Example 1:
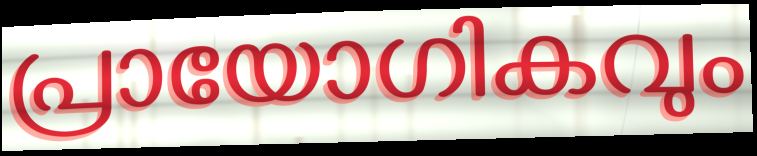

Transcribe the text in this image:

പ്രായോഗികവും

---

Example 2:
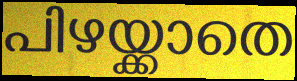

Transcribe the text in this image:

പിഴയ്ക്കാതെ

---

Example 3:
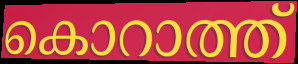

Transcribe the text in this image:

കൊറാത്ത്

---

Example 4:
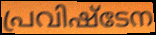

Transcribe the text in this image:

പ്രവിഷ്ടേന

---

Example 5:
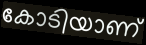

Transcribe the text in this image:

കോടിയാണ്